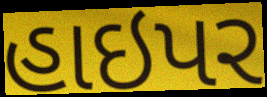
હાઇપર